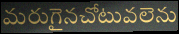
మరుగైనచోటువలెను